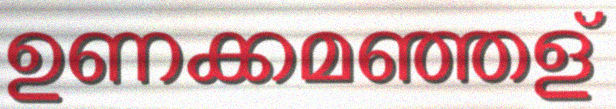
ഉണക്കമഞ്ഞള്